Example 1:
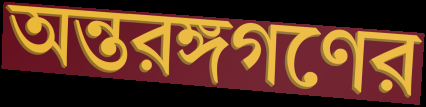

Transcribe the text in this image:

অন্তরঙ্গগণের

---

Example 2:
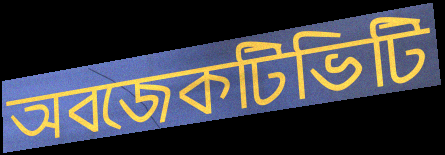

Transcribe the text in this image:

অবজেকটিভিটি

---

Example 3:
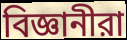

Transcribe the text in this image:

বিজ্ঞানীরা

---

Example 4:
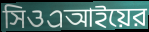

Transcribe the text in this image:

সিওএআইয়ের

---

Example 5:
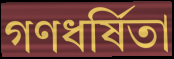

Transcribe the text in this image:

গণধর্ষিতা